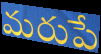
మరుపే